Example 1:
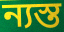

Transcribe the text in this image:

ন্যস্ত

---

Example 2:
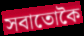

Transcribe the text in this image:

সবাতোকৈ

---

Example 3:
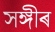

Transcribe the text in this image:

সঙ্গীৰ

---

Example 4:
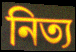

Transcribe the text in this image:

নিত্য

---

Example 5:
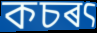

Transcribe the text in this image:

কচৰৎ